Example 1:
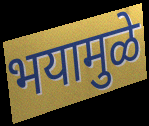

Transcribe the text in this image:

भयामुळे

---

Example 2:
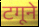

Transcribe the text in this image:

टगूने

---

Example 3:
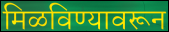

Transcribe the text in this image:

मिळविण्यावरून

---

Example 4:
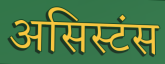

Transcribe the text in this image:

असिस्टंस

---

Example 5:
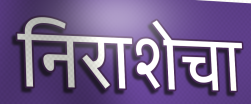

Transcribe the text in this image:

निराशेचा